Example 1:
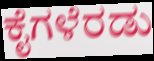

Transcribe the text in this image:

ಕೈಗಳೆರಡು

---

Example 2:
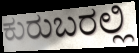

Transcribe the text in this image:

ಕುರುಬರಲ್ಲಿ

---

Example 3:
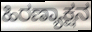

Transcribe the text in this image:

ಹಿರಣ್ಯಾಕ್ಷನ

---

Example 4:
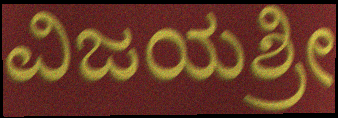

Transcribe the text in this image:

ವಿಜಯಶ್ರೀ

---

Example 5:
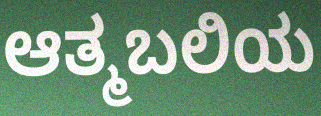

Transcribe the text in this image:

ಆತ್ಮಬಲಿಯ